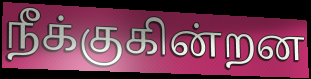
நீக்குகின்றன